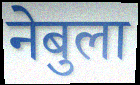
नेबुला